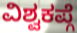
ವಿಶ್ವಕಪ್ಗೆ